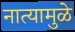
नात्यामुळे